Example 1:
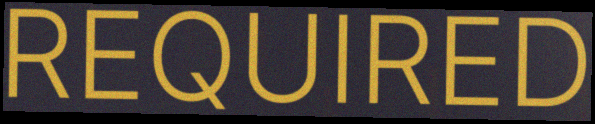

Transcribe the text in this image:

REQUIRED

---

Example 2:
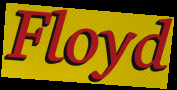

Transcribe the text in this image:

Floyd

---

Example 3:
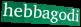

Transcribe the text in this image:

hebbagodi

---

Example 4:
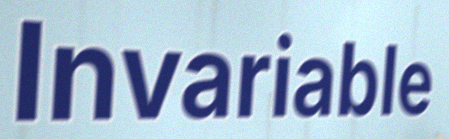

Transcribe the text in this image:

Invariable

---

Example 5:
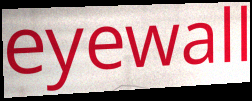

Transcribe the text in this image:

eyewall